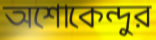
অশোকেন্দুর